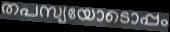
തപസ്യയോടൊപ്പം